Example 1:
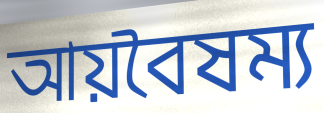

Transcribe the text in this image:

আয়বৈষম্য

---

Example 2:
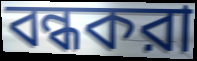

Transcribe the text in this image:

বন্ধকরা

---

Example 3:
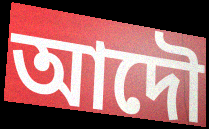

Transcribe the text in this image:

আদৌ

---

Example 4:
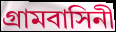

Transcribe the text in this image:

গ্রামবাসিনী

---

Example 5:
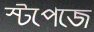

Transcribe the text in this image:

স্টপেজে